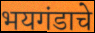
भयगंडाचे